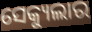
ସେକ୍ୟୁଲାର